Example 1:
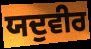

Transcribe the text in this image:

ਯਦੁਵੀਰ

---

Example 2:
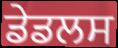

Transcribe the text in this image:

ਡੇਡਲਸ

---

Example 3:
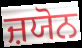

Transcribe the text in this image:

ਜ਼ਯੋਨ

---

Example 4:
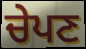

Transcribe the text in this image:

ਚੇਪਣ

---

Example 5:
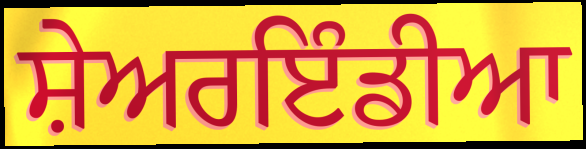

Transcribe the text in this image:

ਸ਼ੇਅਰਇੰਡੀਆ